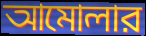
আমোলার